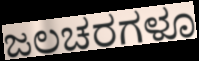
ಜಲಚರಗಳೂ